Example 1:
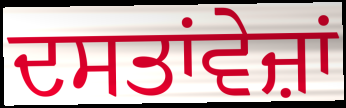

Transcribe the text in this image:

ਦਸਤਾਂਵੇਜ਼ਾਂ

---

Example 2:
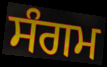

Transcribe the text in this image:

ਸੰਗਮ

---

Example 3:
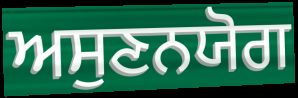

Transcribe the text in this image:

ਅਸੁਣਨਯੋਗ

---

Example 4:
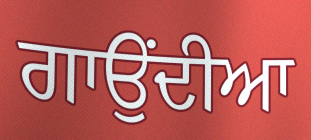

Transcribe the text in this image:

ਗਾਉਂਦੀਆ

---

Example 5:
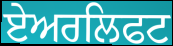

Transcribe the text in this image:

ਏਅਰਲਿਫਟ